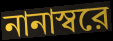
নানাস্বরে